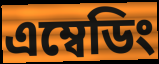
এম্বেডিং